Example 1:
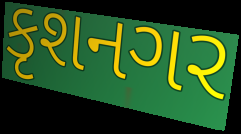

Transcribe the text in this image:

કૃશનગર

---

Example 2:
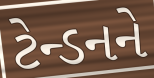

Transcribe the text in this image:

ટેન્ડનને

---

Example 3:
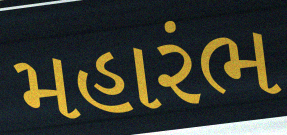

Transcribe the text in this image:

મહારંભ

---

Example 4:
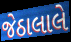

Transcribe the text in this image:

જેઠાલાલે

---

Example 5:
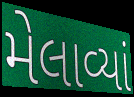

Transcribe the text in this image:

મેલાવ્યાં